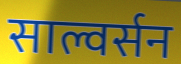
साल्वर्सन